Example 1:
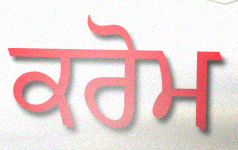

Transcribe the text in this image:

ਕਰੋਮ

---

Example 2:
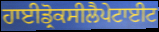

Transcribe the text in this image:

ਹਾਈਡ੍ਰੋਕਸੀਲੈਪੇਟਾਈਟ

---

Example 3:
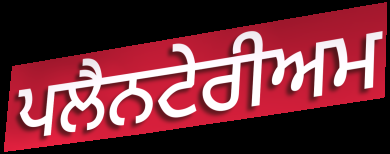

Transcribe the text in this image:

ਪਲੈਨਟੇਰੀਅਮ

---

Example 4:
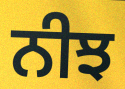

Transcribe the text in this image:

ਨੀਝ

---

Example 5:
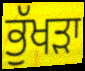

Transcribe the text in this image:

ਭੁੱਖੜਾ